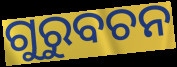
ଗୁରୁବଚନ